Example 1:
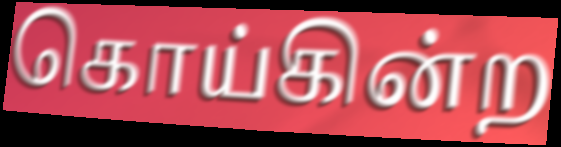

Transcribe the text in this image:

கொய்கின்ற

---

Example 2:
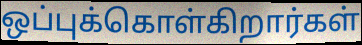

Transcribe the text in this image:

ஒப்புக்கொள்கிறார்கள்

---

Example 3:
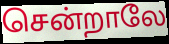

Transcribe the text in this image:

சென்றாலே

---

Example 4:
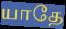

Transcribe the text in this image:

யாதே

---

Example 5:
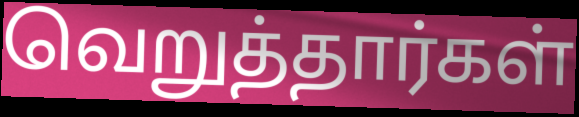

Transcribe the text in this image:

வெறுத்தார்கள்